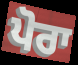
ਪੋਰਾ